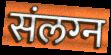
संलग्‍न